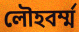
লৌহবর্ম্ম